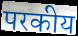
परकीय